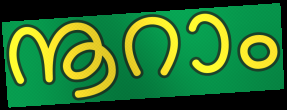
നൂറാം